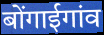
बोंगाईगांव